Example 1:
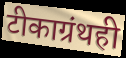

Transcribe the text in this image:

टीकाग्रंथही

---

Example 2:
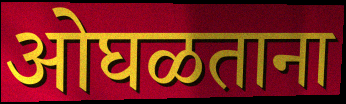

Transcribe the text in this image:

ओघळताना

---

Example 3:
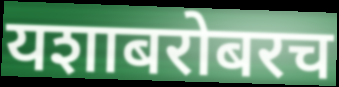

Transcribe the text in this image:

यशाबरोबरच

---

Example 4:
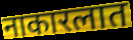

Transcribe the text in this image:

नाकारलात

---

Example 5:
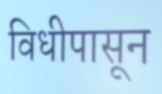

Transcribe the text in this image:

विधीपासून